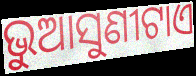
ଭୁଆସୁଣୀଟାଏ